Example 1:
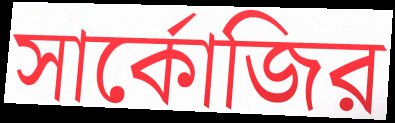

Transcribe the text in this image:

সার্কোজির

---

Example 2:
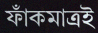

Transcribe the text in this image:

ফাঁকমাত্রই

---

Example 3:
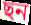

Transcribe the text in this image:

ছন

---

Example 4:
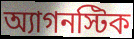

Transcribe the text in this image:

অ্যাগনস্টিক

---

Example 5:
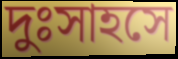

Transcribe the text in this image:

দুঃসাহসে